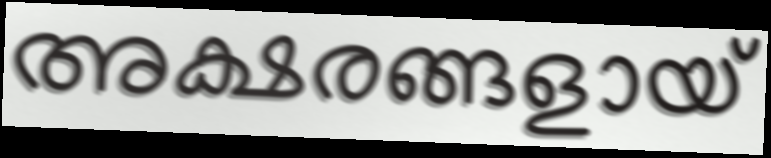
അക്ഷരങ്ങളായ്